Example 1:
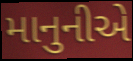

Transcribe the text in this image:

માનુનીએ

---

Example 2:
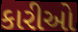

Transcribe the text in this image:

કારીઓ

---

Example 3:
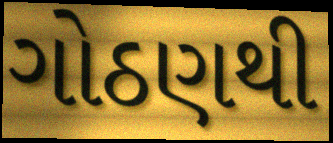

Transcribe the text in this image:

ગોઠણથી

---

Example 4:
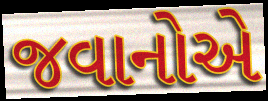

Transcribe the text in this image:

જવાનોએ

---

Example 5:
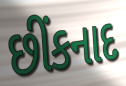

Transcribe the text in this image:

છીંકનાદ